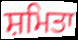
ਸ਼ਮਿਤਾ